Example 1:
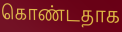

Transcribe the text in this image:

கொண்டதாக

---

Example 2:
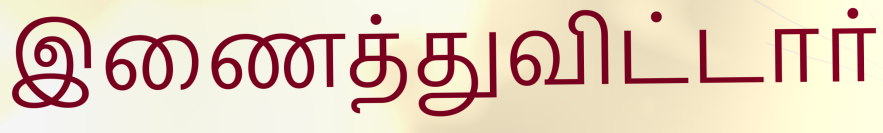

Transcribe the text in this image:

இணைத்துவிட்டார்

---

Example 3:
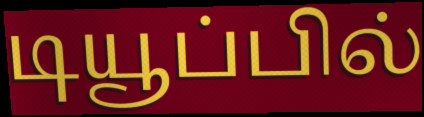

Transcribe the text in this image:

டியூப்பில்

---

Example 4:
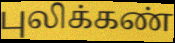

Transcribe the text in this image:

புலிக்கண்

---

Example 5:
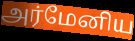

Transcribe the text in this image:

அர்மேனிய